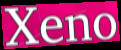
Xeno